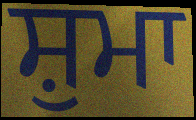
ਸ਼ੁਮਾ